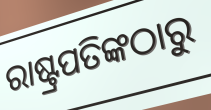
ରାଷ୍ଟ୍ରପତିଙ୍କଠାରୁ